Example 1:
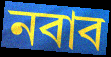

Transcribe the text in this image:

নবাব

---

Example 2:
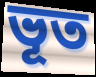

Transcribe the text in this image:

ভূত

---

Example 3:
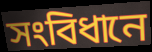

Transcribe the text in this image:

সংবিধানে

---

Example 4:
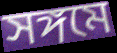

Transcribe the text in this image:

সঙ্গমে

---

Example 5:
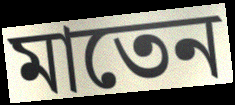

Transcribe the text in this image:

মাতেন